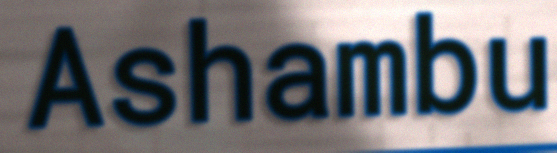
Ashambu